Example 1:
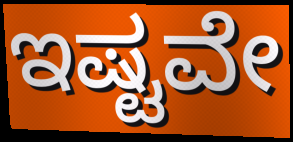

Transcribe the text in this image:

ಇಷ್ಟವೇ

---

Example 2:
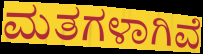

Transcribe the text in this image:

ಮತಗಳಾಗಿವೆ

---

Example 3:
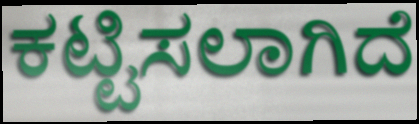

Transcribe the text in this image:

ಕಟ್ಟಿಸಲಾಗಿದೆ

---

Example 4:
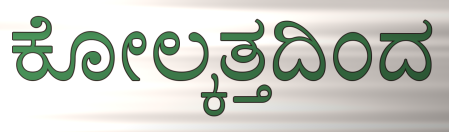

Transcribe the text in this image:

ಕೋಲ್ಕತ್ತದಿಂದ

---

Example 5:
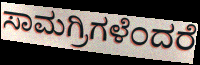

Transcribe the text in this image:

ಸಾಮಗ್ರಿಗಳೆಂದರೆ